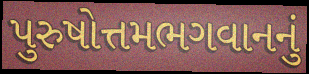
પુરુષોત્તમભગવાનનું